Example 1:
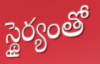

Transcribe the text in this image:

స్థైర్యంతో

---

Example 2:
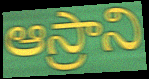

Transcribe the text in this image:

ఆస్రాని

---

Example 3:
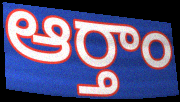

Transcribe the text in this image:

ఆర్తాం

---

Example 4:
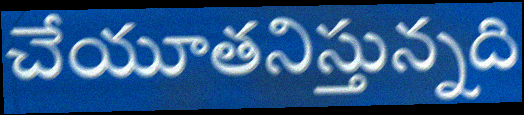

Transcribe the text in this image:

చేయూతనిస్తున్నది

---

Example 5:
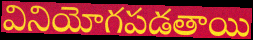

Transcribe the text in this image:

వినియోగపడతాయి